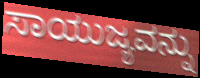
ಸಾಯುಜ್ಯವನ್ನು